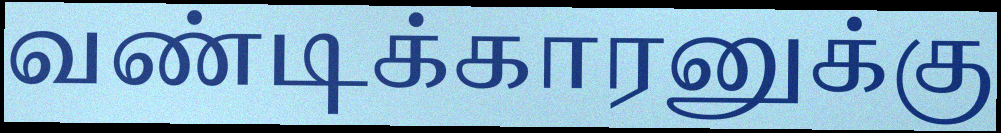
வண்டிக்காரனுக்கு